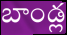
బాండ్ల